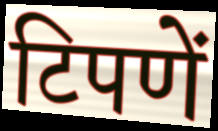
टिपणें